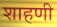
शाहणी